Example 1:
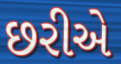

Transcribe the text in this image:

છરીએ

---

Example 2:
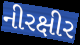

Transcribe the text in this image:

નીરક્ષીર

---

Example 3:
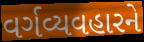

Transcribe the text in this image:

વર્ગવ્યવહારને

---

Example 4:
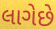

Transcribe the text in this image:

લાગેછે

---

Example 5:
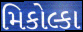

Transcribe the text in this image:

મિકોલ્કા